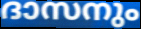
ദാസനും